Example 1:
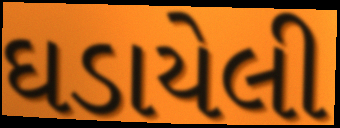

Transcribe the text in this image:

ઘડાયેલી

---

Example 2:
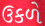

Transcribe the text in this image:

ઉકળે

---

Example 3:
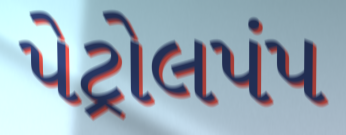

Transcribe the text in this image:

પેટ્રોલપંપ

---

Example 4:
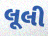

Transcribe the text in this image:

લૂલી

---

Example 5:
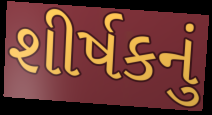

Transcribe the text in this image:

શીર્ષકનું